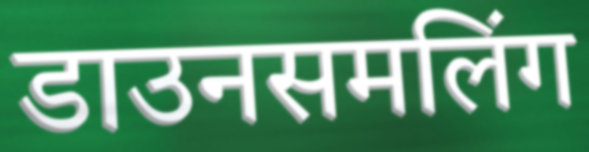
डाउनसमलिंग